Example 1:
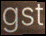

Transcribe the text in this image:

gst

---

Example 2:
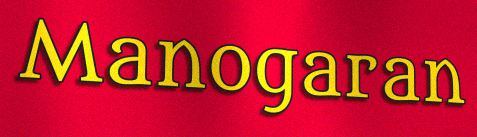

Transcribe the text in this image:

Manogaran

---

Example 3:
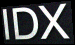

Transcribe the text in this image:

IDX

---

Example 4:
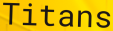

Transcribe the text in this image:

Titans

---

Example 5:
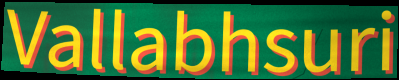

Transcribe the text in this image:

Vallabhsuri